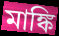
মাঙ্কি